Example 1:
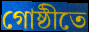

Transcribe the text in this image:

গোষ্ঠীতে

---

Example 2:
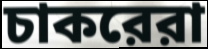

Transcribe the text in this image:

চাকরেরা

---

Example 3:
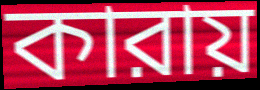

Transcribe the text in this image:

কারায়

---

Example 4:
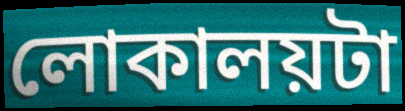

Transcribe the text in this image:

লোকালয়টা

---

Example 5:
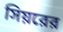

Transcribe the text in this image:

সিয়রের